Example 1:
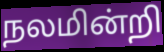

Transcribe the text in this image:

நலமின்றி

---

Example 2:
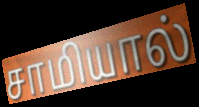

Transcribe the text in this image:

சாமியால்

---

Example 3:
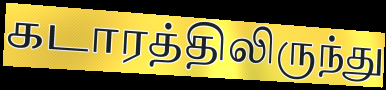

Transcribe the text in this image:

கடாரத்திலிருந்து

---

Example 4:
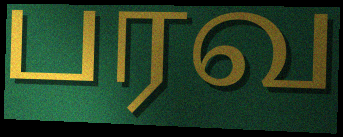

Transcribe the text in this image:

பரவ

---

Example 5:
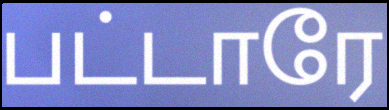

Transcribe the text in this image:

பட்டாரே